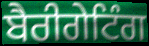
ਬੈਰੀਗੇਟਿੰਗ